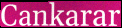
Cankarar